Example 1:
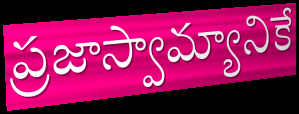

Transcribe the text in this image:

ప్రజాస్వామ్యానికే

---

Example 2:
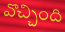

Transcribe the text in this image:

వొచ్చింది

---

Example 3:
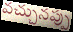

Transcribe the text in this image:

వచ్చునప్పు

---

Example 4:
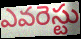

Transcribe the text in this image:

ఎవరెస్టు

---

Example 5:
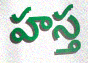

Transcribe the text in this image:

హస్త